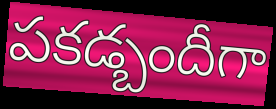
పకడ్బందీగా